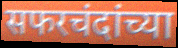
सफरचंदांच्या